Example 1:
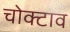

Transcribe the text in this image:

चोक्टाव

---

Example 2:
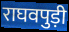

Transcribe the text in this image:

राघवपुड़ी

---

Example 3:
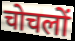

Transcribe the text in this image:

चोचलों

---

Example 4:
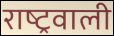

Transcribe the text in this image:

राष्ट्रवाली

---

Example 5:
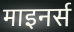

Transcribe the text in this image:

माइनर्स